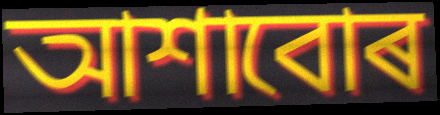
আশাবোৰ